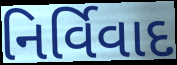
નિર્વિવાદ